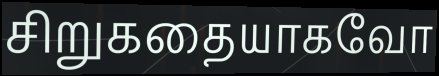
சிறுகதையாகவோ